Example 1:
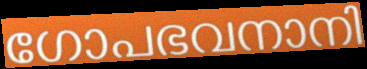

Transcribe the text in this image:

ഗോപഭവനാനി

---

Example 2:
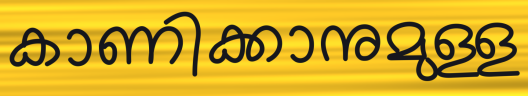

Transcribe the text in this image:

കാണിക്കാനുമുള്ള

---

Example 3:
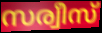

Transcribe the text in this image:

സര്വീസ്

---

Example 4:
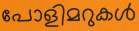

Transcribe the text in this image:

പോളിമറുകൾ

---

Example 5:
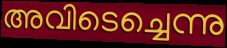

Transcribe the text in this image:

അവിടെച്ചെന്നു